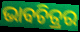
ଭାବଚିତ୍ରର